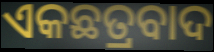
ଏକଛତ୍ରବାଦ